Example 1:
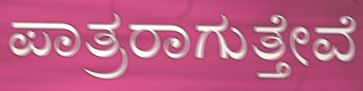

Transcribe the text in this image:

ಪಾತ್ರರಾಗುತ್ತೇವೆ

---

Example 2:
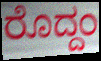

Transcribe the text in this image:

ರೊದ್ದಂ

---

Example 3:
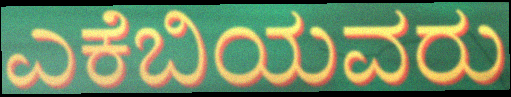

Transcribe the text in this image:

ಎಕೆಬಿಯವರು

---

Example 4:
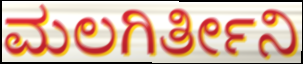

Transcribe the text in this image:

ಮಲಗಿರ್ತೀನಿ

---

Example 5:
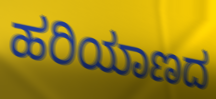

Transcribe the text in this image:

ಹರಿಯಾಣದ